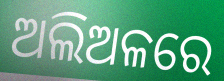
ଅଲିଅଳରେ